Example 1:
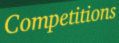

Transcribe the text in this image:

Competitions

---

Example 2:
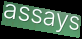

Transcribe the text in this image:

assays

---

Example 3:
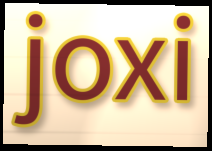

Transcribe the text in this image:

joxi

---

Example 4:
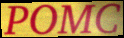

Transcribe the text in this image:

POMC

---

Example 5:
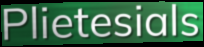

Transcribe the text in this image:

Plietesials